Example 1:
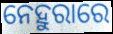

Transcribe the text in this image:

ନେହୁରାରେ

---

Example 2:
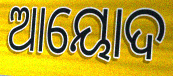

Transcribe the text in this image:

ଆୟୋଦ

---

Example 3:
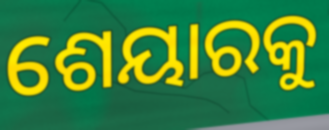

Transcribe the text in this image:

ଶେୟାରକୁ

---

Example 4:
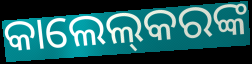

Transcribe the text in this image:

କାଲେଲ୍‌କରଙ୍କ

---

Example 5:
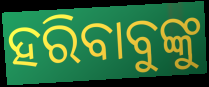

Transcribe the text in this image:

ହରିବାବୁଙ୍କୁ